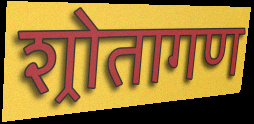
श्रोतागण